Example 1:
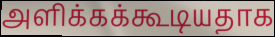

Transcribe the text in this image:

அளிக்கக்கூடியதாக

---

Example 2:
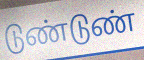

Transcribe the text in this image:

டுண்டுண்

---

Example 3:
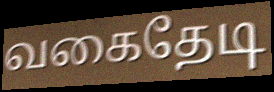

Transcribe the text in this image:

வகைதேடி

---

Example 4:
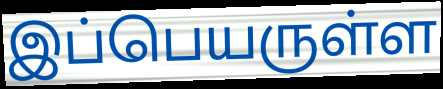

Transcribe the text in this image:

இப்பெயருள்ள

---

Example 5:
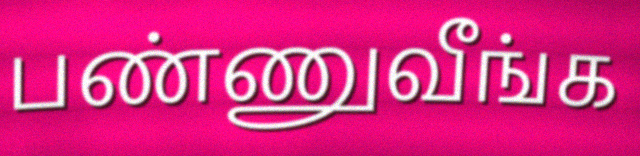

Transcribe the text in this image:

பண்ணுவீங்க